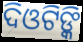
ଦିଓଟିଙ୍କି